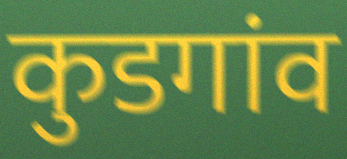
कुडगांव